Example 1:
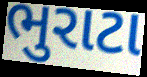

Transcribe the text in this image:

ભુરાટા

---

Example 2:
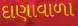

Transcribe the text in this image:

દાણાવાળા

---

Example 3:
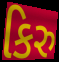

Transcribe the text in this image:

કિરુ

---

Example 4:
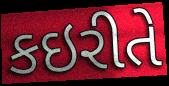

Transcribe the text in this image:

કઇરીતે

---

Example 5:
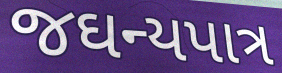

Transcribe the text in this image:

જઘન્યપાત્ર